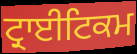
ਟ੍ਰਾਈਟਿਕਮ